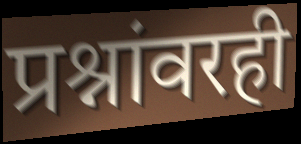
प्रश्नांवरही